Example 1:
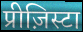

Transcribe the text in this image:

प्रीज़िस्टा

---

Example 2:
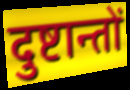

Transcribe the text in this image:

दुष्टान्तों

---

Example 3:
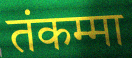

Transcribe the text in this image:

तंकम्मा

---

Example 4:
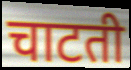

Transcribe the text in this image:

चाटती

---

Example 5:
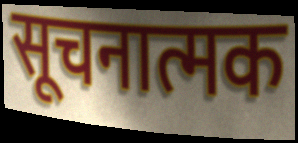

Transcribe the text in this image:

सूचनात्मक